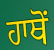
ਹਾਥੋਂ